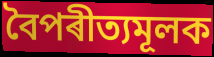
বৈপৰীত্যমূলক